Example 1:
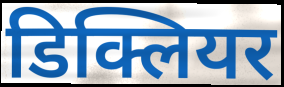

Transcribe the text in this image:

डिक्लियर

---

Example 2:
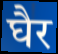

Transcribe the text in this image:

घैर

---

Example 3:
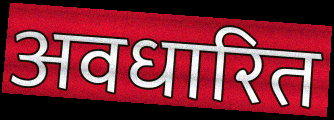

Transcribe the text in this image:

अवधारित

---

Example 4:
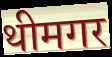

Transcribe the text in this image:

थीमगर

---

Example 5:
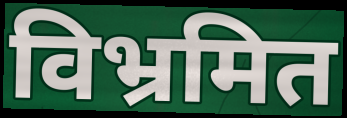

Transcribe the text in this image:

विभ्रमित